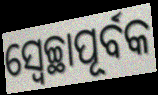
ସ୍ଵେଚ୍ଛାପୂର୍ବକ